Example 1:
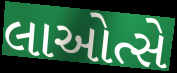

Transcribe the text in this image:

લાઓત્સે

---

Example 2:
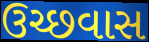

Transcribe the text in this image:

ઉચ્છવાસ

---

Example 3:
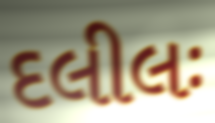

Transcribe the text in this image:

દલીલઃ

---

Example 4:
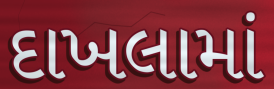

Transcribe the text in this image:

દાખલામાં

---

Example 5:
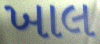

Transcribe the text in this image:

ખાલ